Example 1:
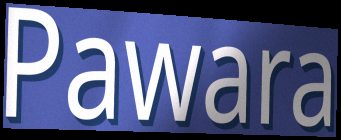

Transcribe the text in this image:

Pawara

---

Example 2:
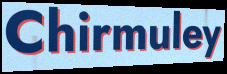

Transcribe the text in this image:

Chirmuley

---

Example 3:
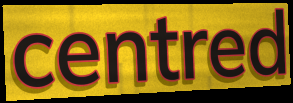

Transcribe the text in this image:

centred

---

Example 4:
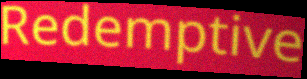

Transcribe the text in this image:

Redemptive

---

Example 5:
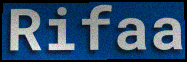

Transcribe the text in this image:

Rifaa